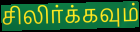
சிலிர்க்கவும்